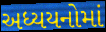
અધ્યયનોમાં